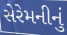
સેરેમનીનું